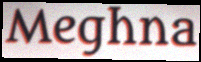
Meghna